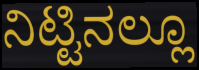
ನಿಟ್ಟಿನಲ್ಲೂ